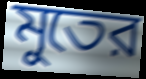
মুতের